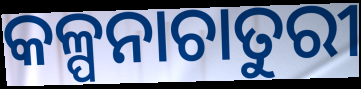
କଳ୍ପନାଚାତୁରୀ